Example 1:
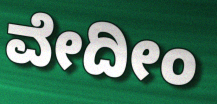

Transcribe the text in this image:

ವೇದೀಂ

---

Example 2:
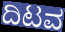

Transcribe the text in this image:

ದಿಟವ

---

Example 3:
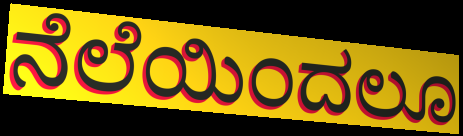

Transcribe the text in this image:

ನೆಲೆಯಿಂದಲೂ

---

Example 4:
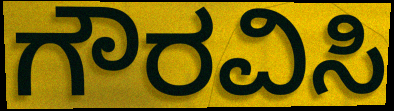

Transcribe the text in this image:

ಗೌರವಿಸಿ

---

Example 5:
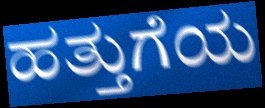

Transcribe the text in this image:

ಹತ್ತುಗೆಯ